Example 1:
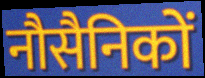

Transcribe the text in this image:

नौसैनिकों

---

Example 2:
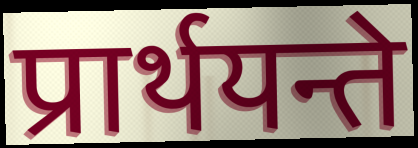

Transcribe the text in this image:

प्रार्थयन्ते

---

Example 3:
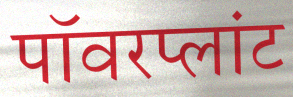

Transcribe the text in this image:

पॉवरप्लांट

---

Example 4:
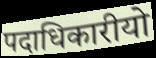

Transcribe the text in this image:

पदाधिकारीयो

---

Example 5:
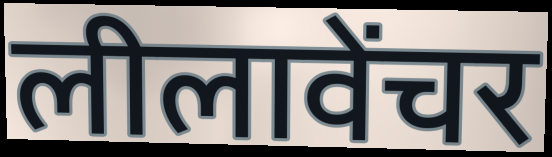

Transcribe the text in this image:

लीलावेंचर